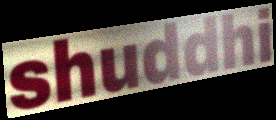
shuddhi